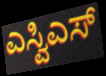
ಎಸ್ವಿಎಸ್